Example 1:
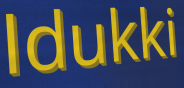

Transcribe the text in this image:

Idukki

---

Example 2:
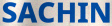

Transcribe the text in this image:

SACHIN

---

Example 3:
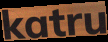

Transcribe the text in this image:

katru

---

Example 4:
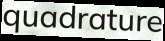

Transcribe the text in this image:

quadrature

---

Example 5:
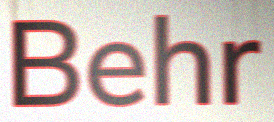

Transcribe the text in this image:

Behr